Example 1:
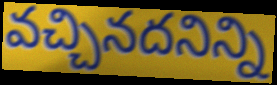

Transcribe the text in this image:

వచ్చినదనిన్ని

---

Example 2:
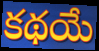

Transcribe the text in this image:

కథయే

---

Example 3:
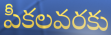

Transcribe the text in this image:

పీకలవరకు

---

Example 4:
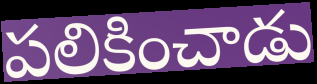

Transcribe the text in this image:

పలికించాడు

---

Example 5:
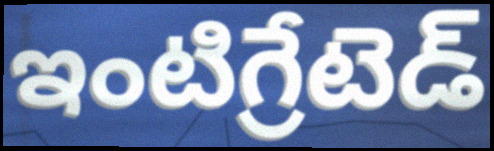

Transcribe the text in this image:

ఇంటిగ్రేటెడ్